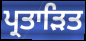
ਪ੍ਰਤਾੜਿਤ